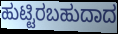
ಹುಟ್ಟಿರಬಹುದಾದ